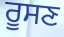
ਰੂਸਣ